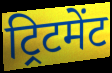
ट्रिटमेंट